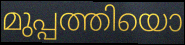
മുപ്പത്തിയൊ